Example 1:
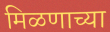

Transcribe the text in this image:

मिळणाच्या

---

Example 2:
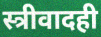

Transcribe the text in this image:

स्त्रीवादही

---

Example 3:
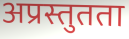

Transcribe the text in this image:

अप्रस्तुतता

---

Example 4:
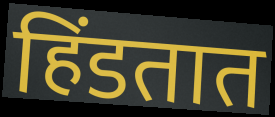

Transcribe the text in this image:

हिंडतात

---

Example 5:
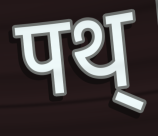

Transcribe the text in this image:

पथ्